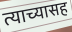
त्याच्यासह